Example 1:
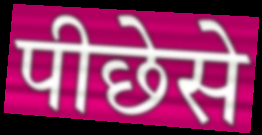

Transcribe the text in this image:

पीछेसे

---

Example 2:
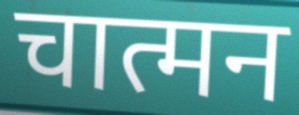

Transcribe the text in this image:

चात्मन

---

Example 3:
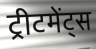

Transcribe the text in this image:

ट्रीटमेंट्स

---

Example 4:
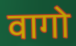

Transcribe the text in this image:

वागो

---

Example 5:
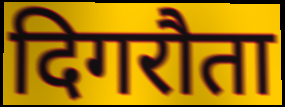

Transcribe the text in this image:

दिगरौता